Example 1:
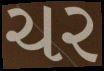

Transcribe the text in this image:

ચર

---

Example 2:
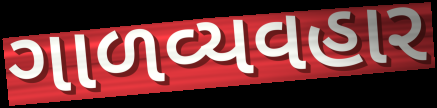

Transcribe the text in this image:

ગાળવ્યવહાર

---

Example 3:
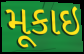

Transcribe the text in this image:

મૂકાઇ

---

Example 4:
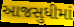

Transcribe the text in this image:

આજસુધીમાં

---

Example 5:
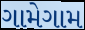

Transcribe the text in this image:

ગામેગામ